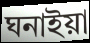
ঘনাইয়া